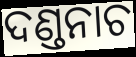
ଦଣ୍ଡନାଚ